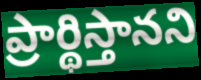
ప్రార్థిస్తానని